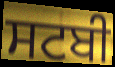
ਸਟਬੀ